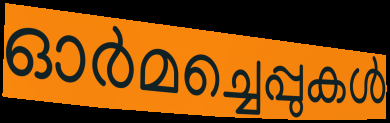
ഓർമച്ചെപ്പുകൾ